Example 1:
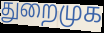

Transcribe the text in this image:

துறைமுக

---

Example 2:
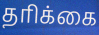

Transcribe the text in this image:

தரிக்கை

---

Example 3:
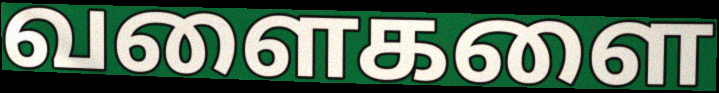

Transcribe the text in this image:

வளைகளை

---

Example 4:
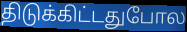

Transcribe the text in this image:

திடுக்கிட்டதுபோல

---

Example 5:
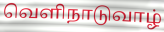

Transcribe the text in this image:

வெளிநாடுவாழ்